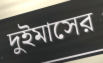
দুইমাসের